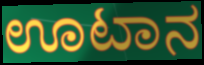
ಊಟಾನ